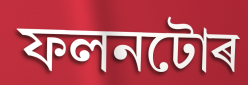
ফলনটোৰ